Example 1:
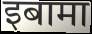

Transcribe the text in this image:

इबामा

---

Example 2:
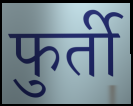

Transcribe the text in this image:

फुर्ती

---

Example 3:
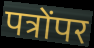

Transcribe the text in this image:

पत्रोंपर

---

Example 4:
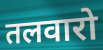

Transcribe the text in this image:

तलवारो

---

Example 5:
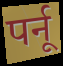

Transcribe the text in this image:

पर्नू